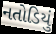
નતોડિયું